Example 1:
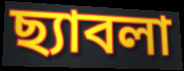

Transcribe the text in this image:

ছ্যাবলা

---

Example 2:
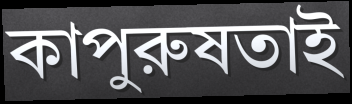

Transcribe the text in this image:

কাপুরুষতাই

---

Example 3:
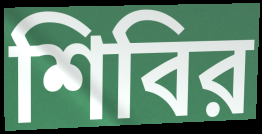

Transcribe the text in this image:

শিবির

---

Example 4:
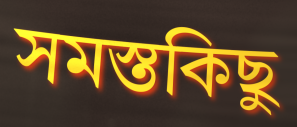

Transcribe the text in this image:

সমস্তকিছু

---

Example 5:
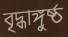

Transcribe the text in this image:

বৃদ্ধাঙ্গুষ্ঠ